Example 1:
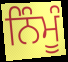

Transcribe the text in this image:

ਨਿੰਮੂੰ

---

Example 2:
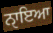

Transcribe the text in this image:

ਨੑਾਇਆ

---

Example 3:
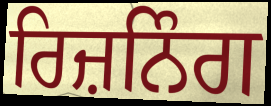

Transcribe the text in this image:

ਰਿਜ਼ਨਿੰਗ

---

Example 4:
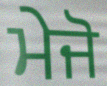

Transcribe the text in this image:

ਮੇਜੋ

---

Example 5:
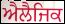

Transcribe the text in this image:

ਐਲੈਜਿਕ